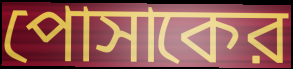
পোসাকের